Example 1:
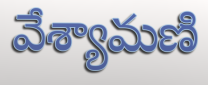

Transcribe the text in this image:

వేశ్యామణి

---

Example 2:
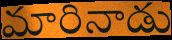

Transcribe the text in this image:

మారినాడు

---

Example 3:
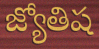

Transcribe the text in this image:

జ్యోతిష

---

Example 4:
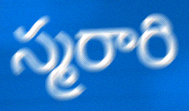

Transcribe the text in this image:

స్మరారి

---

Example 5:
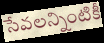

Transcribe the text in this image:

సేవలన్నింటికీ